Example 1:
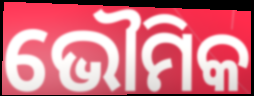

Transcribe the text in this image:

ଭୌମିକ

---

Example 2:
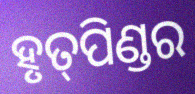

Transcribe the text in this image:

ହୃତ୍‌ପିଣ୍ଡର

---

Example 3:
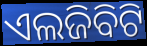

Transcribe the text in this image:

ଏଲଜିବିଟି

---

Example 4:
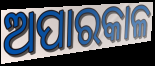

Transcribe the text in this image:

ଅପାରକାଳ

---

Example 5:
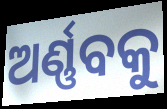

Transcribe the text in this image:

ଅର୍ଣ୍ଣବକୁ